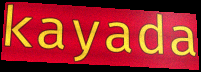
kayada